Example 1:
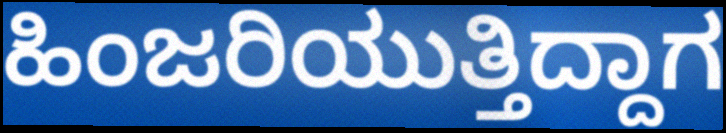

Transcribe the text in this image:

ಹಿಂಜರಿಯುತ್ತಿದ್ದಾಗ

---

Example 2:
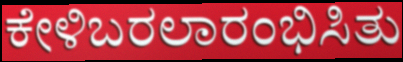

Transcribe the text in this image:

ಕೇಳಿಬರಲಾರಂಭಿಸಿತು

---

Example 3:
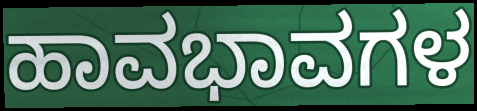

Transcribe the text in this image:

ಹಾವಭಾವಗಳ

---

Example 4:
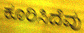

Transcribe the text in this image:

ಕೂರಿಸಿದೆವು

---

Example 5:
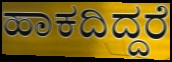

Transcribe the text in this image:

ಹಾಕದಿದ್ದರೆ